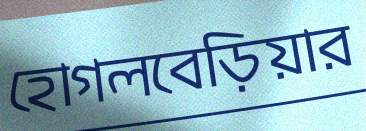
হোগলবেড়িয়ার